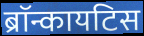
ब्रॉन्कायटिस